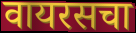
वायरसचा